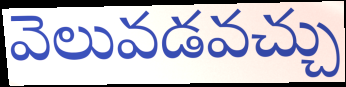
వెలువడవచ్చు